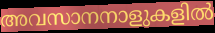
അവസാനനാളുകളിൽ